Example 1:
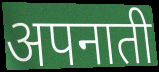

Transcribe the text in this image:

अपनाती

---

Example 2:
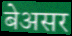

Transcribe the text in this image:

बेअसर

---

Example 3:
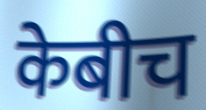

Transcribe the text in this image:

केबीच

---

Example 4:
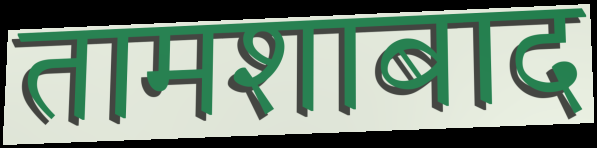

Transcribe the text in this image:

तामशाबाद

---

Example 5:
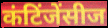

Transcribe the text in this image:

कंटिंजेंसीज